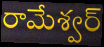
రామేశ్వర్